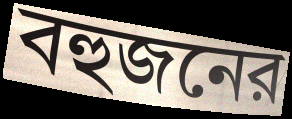
বহুজনের